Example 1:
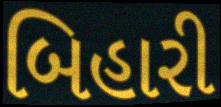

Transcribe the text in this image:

બિહારી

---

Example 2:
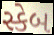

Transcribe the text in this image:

સ્કેબ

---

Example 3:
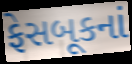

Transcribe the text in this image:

ફેસબૂકનાં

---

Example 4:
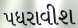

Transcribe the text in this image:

પધરાવીશ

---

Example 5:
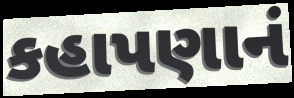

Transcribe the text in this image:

કહાપણાનં